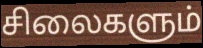
சிலைகளும்